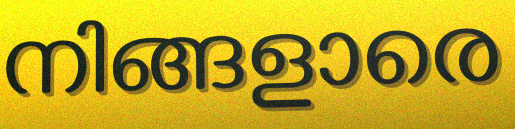
നിങ്ങളാരെ